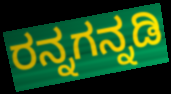
ರನ್ನಗನ್ನಡಿ